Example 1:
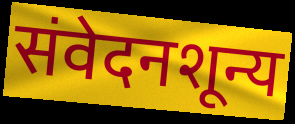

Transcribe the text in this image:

संवेदनशून्य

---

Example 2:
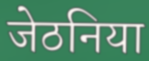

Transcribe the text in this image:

जेठनिया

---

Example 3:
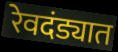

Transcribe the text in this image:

रेवदंड्यात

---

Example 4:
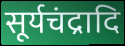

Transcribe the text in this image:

सूर्यचंद्रादि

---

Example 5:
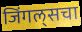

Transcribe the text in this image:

जिंगल्सचा